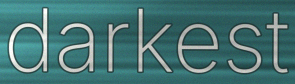
darkest